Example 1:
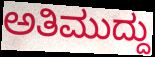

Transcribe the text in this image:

ಅತಿಮುದ್ದು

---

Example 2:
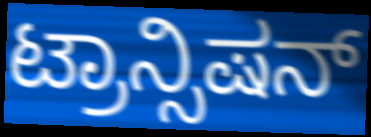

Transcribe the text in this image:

ಟ್ರಾನ್ಸಿಷನ್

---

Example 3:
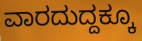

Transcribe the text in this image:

ವಾರದುದ್ದಕ್ಕೂ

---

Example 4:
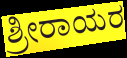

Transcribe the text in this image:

ಶ್ರೀರಾಯರ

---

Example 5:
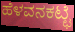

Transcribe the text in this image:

ಹೆಳವನಕಟ್ಟೆ